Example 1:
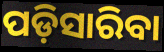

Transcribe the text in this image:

ପଡ଼ିସାରିବା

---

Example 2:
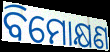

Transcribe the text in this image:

ବିମୋକ୍ଷଣ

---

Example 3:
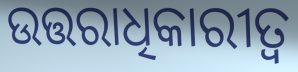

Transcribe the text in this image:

ଉତ୍ତରାଧିକାରୀତ୍ଵ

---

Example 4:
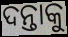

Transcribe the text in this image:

ଦନ୍ତାକୁ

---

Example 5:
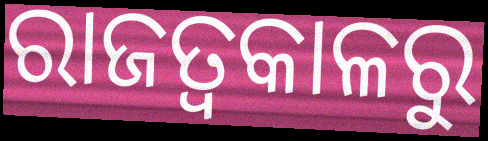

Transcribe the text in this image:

ରାଜତ୍ଵକାଳରୁ